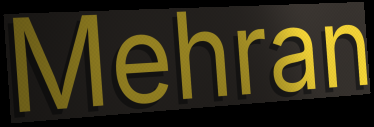
Mehran